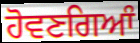
ਹੋਵਣਗਿਆੰ